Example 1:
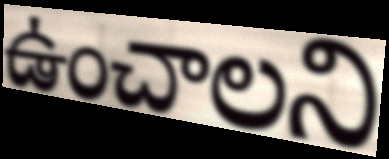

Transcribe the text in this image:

ఉంచాలని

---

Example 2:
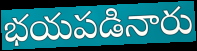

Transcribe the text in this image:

భయపడినారు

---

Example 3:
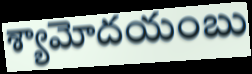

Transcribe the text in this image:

శ్యామోదయంబు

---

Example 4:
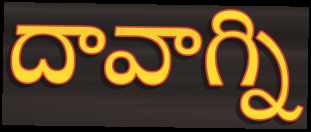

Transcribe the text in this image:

దావాగ్ని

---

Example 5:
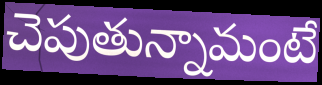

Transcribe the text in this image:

చెపుతున్నామంటే